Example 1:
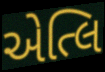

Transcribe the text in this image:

એત્લિ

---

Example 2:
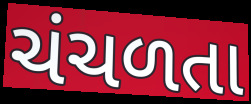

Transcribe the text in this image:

ચંચળતા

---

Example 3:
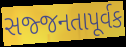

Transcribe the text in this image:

સજ્જનતાપૂર્વક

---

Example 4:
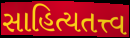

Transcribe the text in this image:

સાહિત્યતત્ત્વ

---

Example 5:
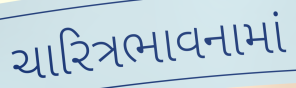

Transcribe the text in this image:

ચારિત્રભાવનામાં